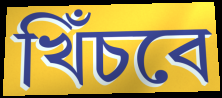
খিঁচবে